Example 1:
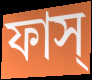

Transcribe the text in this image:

ফাস্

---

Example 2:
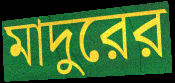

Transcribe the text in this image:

মাদুরের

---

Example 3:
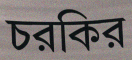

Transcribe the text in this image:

চরকির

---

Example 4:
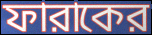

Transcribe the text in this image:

ফারাকের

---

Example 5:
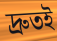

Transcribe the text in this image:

দ্রুতই